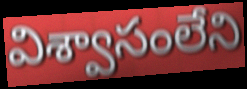
విశ్వాసంలేని